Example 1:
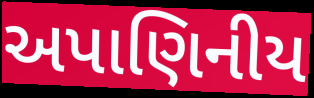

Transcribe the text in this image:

અપાણિનીય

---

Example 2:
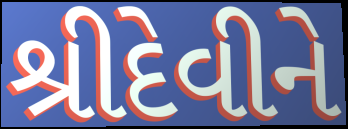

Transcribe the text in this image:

શ્રીદેવીને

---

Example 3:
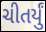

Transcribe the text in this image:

ચીતર્યું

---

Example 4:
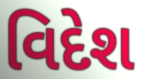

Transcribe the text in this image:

વિદેશ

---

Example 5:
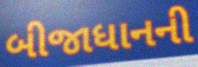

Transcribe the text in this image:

બીજાધાનની